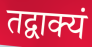
तद्वाक्यं